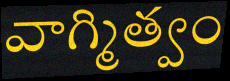
వాగ్మిత్వం